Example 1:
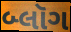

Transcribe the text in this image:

બ્લૉગ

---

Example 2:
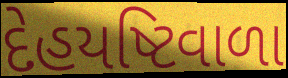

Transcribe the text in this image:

દેહયષ્ટિવાળા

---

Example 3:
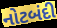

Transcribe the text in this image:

નોટબંદી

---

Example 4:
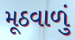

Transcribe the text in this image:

મૂઠવાળું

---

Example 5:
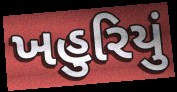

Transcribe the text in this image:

ખહુરિયું